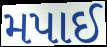
મપાઈ